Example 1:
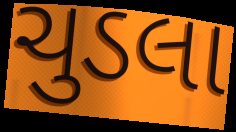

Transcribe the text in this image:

ચુડલા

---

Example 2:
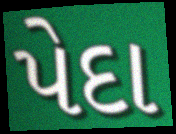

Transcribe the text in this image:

પેદા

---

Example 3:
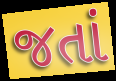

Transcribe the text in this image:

જતાં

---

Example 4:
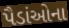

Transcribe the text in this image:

પૈડાંઓના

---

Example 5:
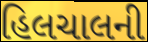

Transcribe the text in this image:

હિલચાલની